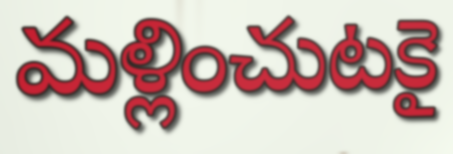
మళ్లించుటకై